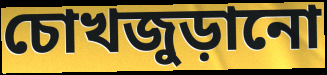
চোখজুড়ানো